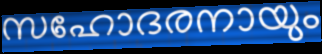
സഹോദരനായും